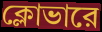
ক্লোভারে